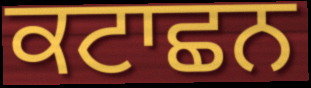
ਕਟਾਛਨ